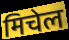
मिचेल